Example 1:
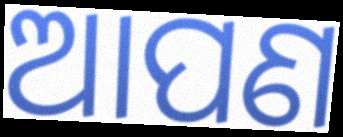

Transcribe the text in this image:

ଆପଣ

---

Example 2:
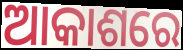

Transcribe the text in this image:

ଆକାଶରେ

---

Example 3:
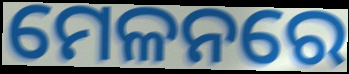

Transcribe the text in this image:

ମେଳନରେ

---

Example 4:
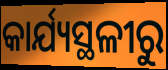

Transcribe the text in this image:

କାର୍ଯ୍ୟସ୍ଥଳୀରୁ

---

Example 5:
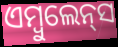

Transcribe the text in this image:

ଏମ୍ବୁଲେନ୍‌ସ